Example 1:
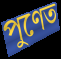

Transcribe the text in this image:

পুণেত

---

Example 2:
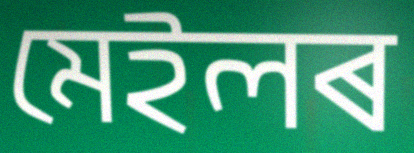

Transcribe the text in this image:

মেইলৰ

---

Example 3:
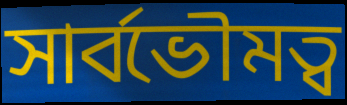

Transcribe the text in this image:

সাৰ্বভৌমত্ব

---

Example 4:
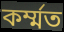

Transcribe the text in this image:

কৰ্ম্মত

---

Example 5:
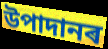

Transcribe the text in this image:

উপাদানৰ